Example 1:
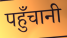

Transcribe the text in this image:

पहुँचानी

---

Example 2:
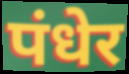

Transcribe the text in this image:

पंधेर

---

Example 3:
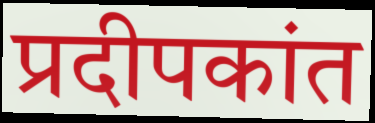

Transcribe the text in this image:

प्रदीपकांत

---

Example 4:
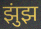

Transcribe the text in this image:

झुंझ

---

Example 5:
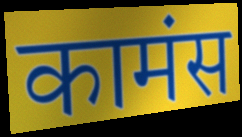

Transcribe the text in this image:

कामंस